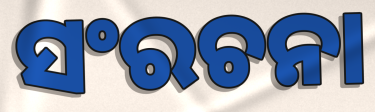
ସଂରଚନା